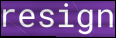
resign